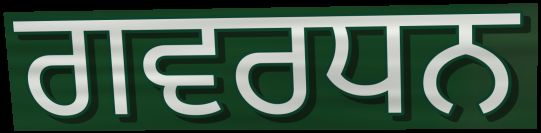
ਗਵਰਧਨ